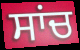
ਸਾਂਚ